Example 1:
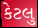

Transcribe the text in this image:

કેટલુ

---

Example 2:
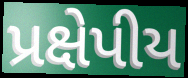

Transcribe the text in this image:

પ્રક્ષેપીય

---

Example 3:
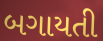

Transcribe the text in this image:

બગાયતી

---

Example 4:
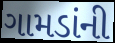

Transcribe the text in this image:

ગામડાંની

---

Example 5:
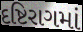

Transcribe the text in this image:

દષ્ટિરાગમાં